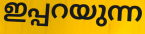
ഇപ്പറയുന്ന